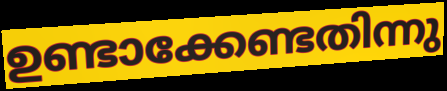
ഉണ്ടാക്കേണ്ടതിന്നു